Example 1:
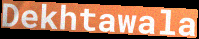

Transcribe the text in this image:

Dekhtawala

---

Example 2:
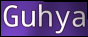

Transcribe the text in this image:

Guhya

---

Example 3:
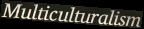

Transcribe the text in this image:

Multiculturalism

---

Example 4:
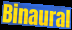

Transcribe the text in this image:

Binaural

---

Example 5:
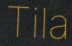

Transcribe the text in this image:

Tila